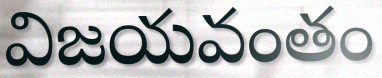
విజయవంతం